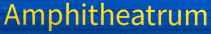
Amphitheatrum